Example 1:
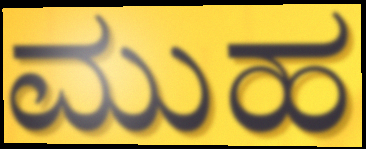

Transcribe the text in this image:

ಮುಹ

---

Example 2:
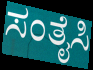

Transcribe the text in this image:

ಸಂತೈಸಿ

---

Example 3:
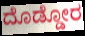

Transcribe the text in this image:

ದೊಡ್ಡೋರ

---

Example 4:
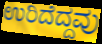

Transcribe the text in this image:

ಉರಿದೆದ್ದವು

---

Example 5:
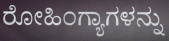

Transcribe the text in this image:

ರೋಹಿಂಗ್ಯಾಗಳನ್ನು